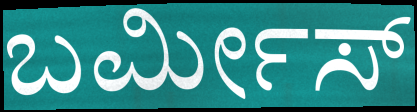
ಬರ್ಮೀಸ್